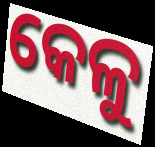
କେଳୁ